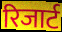
रिजार्ट